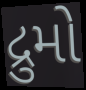
દ્રુમો